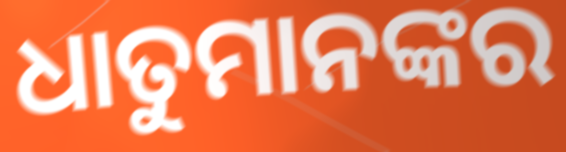
ଧାତୁମାନଙ୍କର